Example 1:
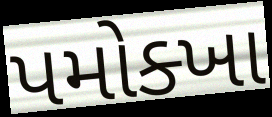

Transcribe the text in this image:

પમોક્ખા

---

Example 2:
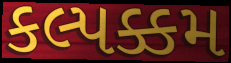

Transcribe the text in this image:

કલ્પક્કમ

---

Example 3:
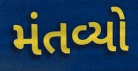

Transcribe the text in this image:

મંતવ્યો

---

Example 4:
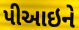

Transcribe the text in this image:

પીઆઇને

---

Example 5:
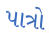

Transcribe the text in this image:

પાત્રો